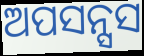
ଅପସନ୍ସସ